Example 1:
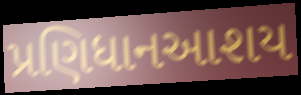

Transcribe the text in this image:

પ્રણિધાનઆશય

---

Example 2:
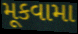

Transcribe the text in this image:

મૂકવામા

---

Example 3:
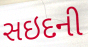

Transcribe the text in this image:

સઇદની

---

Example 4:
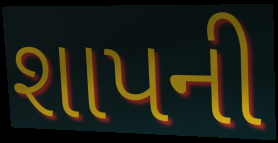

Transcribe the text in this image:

શાપની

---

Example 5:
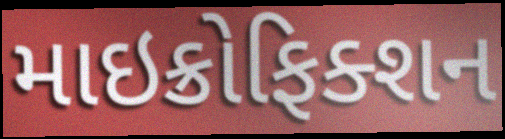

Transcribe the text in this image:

માઇક્રોફિક્શન